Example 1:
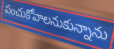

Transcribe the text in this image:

పంచుకోవాలనుకున్నాను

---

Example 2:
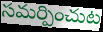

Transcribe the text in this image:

సమర్పించుట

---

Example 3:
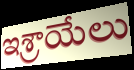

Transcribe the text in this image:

ఇశ్రాయేలు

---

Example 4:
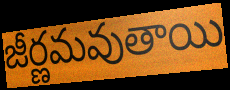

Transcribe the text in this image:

జీర్ణమవుతాయి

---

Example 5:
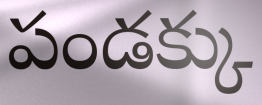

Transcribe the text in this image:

పండక్కు